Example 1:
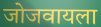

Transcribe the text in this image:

जोजवायला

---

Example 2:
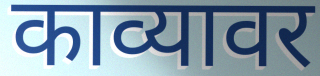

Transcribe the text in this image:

काव्यावर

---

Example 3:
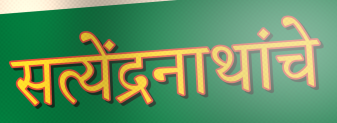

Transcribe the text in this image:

सत्येंद्रनाथांचे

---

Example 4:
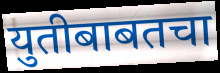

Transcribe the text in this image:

युतीबाबतचा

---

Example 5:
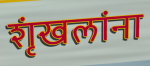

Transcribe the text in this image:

शृंखलांना